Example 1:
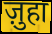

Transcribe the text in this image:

ज़ुहा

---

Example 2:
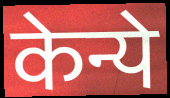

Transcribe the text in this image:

केन्ये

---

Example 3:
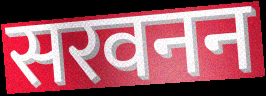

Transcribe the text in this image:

सरवनन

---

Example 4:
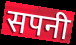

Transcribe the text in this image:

सपनी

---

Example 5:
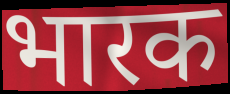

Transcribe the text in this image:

भारक